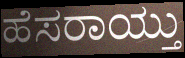
ಹೆಸರಾಯ್ತು